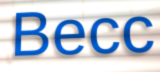
Becc